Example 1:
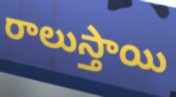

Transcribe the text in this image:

రాలుస్తాయి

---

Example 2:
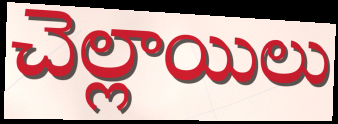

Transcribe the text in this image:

చెల్లాయిలు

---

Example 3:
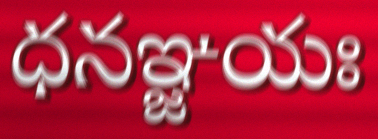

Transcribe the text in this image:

ధనఞ్జయః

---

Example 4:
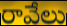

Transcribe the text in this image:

రావేలు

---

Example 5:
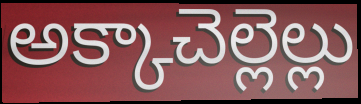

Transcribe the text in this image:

అక్కాచెల్లెల్లు